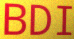
BDI